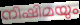
നിഷിമയും